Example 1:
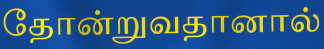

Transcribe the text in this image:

தோன்றுவதானால்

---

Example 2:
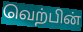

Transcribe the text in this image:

வெற்பின்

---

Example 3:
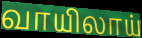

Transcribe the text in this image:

வாயிலாய்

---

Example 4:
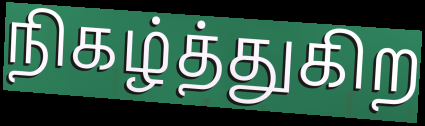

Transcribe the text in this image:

நிகழ்த்துகிற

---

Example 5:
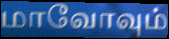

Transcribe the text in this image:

மாவோவும்